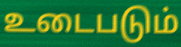
உடைபடும்